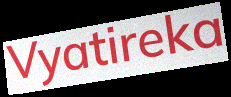
Vyatireka